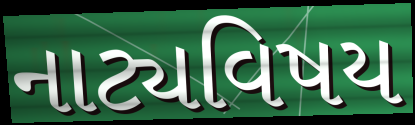
નાટ્યવિષય